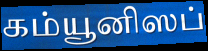
கம்யூனிஸப்